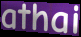
athai